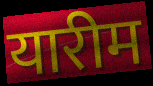
यारीम